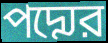
পদ্মের